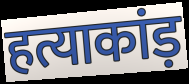
हत्याकांड़